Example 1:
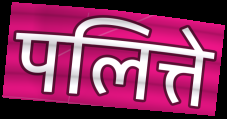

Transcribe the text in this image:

पलित्ते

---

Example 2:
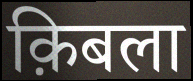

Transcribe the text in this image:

क़िबला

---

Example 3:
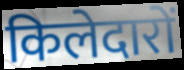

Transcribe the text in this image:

किलेदारों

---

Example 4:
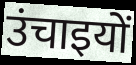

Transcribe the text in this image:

उंचाइयों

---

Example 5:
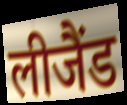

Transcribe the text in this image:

लीजैंड